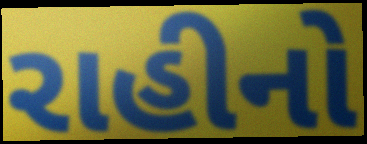
રાહીનો